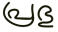
പ്രഭു